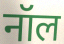
नॉल